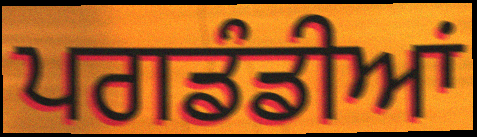
ਪਗਡੰਡੀਆਂ